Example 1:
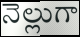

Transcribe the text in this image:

నెల్లుగా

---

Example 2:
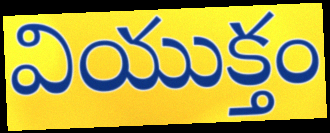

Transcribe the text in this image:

వియుక్తం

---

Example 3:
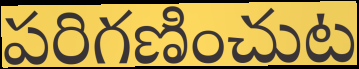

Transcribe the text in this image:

పరిగణించుట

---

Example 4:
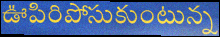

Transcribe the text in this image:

ఊపిరిపోసుకుంటున్న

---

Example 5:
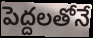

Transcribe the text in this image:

పెద్దలతోనే